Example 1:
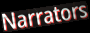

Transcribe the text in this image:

Narrators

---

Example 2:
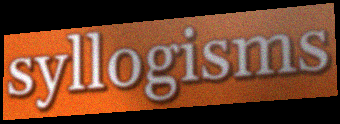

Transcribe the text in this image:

syllogisms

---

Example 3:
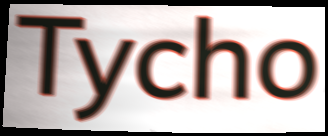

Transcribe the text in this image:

Tycho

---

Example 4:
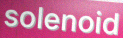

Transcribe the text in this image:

solenoid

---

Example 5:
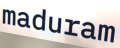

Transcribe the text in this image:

maduram